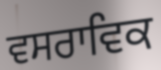
ਵਸਰਾਵਿਕ